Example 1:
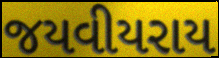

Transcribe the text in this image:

જયવીયરાય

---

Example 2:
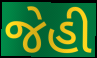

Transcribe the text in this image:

જેહી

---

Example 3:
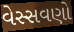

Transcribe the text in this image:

વેસ્સવણો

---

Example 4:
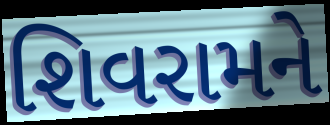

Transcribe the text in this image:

શિવરામને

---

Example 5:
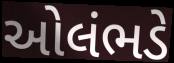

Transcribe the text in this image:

ઓલંભડે